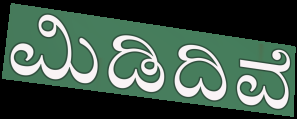
ಮಿಡಿದಿವೆ